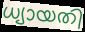
ധ്യായതി